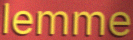
lemme